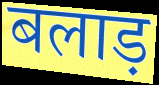
बलाड़